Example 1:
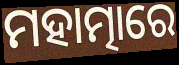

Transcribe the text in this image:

ମହାତ୍ମାରେ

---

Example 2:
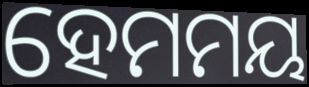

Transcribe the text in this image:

ହେମମୟ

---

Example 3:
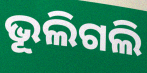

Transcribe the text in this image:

ଭୂଲିଗଲି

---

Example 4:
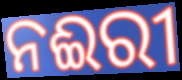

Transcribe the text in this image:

ନଈରୀ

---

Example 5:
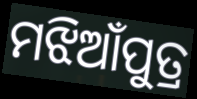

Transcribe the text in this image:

ମଝିଆଁପୁତ୍ର